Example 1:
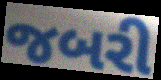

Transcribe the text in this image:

જબરી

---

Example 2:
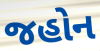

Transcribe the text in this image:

જહોન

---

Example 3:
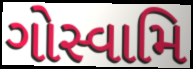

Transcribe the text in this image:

ગોસ્વામિ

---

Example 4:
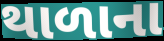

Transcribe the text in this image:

થાળાના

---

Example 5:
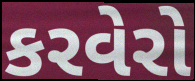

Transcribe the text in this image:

કરવેરો